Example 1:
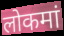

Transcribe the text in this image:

लोकमां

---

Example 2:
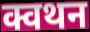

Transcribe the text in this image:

क्वथन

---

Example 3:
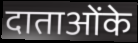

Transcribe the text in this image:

दाताओंके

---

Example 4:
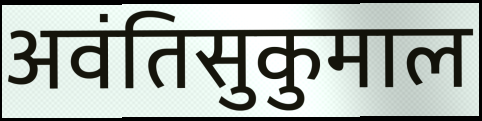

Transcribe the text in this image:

अवंतिसुकुमाल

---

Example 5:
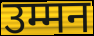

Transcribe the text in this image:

उम्मन